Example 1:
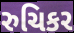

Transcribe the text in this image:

રુચિકર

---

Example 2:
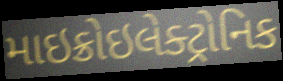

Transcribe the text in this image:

માઇક્રોઇલેક્ટ્રોનિક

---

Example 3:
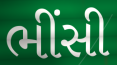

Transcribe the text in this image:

ભીંસી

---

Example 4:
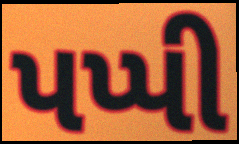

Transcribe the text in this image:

પપ્પી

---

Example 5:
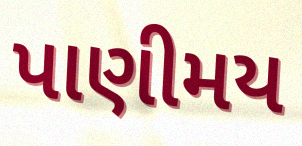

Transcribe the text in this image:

પાણીમય